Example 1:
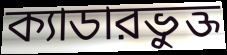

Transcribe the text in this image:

ক্যাডারভুক্ত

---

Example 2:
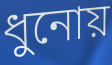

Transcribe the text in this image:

ধুনোয়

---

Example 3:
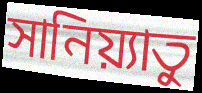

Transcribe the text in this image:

সানিয়্যাতু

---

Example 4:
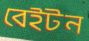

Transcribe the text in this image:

বেইটন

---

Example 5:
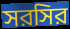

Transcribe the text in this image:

সরসির